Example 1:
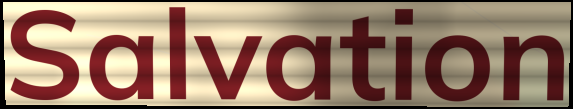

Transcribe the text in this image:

Salvation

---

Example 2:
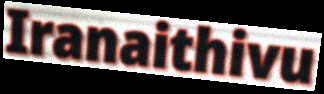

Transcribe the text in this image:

Iranaithivu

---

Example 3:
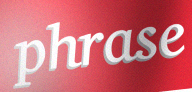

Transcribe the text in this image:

phrase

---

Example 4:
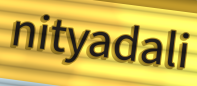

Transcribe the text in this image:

nityadali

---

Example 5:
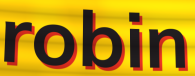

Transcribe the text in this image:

robin